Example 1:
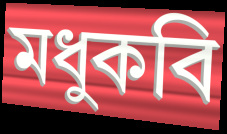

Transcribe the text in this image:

মধুকবি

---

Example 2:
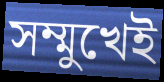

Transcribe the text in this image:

সম্মুখেই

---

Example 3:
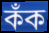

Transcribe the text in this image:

কঁক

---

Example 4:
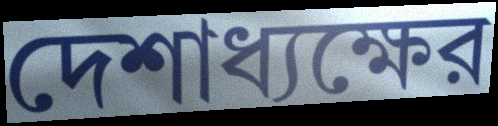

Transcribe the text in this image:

দেশাধ্যক্ষের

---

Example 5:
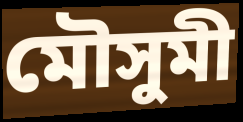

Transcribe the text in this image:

মৌসুমী